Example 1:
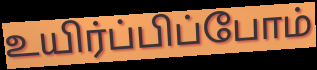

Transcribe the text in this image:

உயிர்ப்பிப்போம்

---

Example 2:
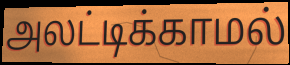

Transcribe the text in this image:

அலட்டிக்காமல்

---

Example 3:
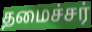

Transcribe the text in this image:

தமைச்சர்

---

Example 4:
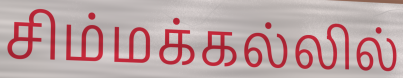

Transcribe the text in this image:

சிம்மக்கல்லில்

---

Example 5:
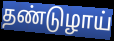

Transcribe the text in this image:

தண்டுழாய்